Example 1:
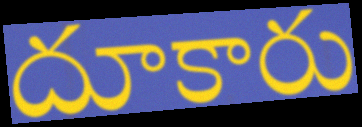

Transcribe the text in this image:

దూకారు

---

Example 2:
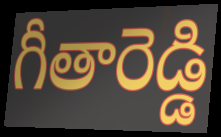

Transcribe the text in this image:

గీతారెడ్డి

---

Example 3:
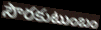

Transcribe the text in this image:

సౌరకుటుంబం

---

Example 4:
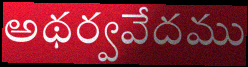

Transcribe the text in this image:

అథర్వవేదము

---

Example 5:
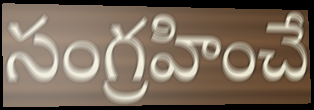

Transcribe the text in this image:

సంగ్రహించే